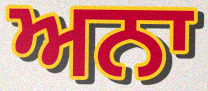
ਅਨਾ